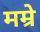
मम्रे